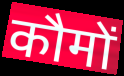
कौमों